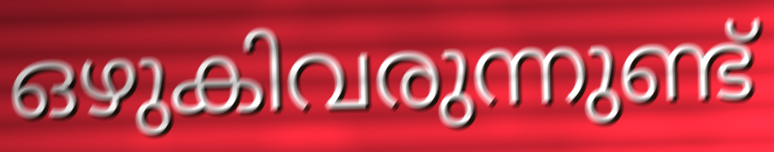
ഒഴുകിവരുന്നുണ്ട്